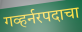
गव्हर्नरपदाचा